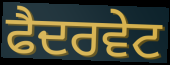
ਫੈਦਰਵੇਟ